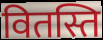
वितस्ति